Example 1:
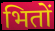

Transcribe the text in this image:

भितों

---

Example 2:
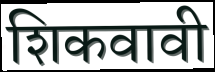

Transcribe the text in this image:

शिकवावी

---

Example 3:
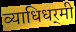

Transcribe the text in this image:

व्याधिधर्मी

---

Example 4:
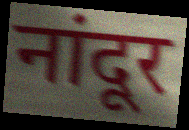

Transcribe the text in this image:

नांदूर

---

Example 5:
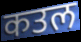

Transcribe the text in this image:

कउल